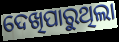
ଦେଖିପାରୁଥିଲା